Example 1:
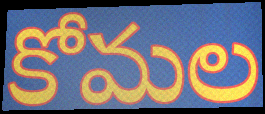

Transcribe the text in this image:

కోమల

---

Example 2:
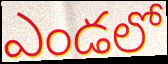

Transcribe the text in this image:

ఎండలో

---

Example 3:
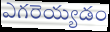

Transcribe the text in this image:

ఎగరెయ్యడం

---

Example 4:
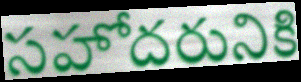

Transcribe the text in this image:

సహోదరునికి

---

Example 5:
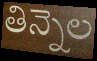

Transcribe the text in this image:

తిన్నెల